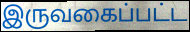
இருவகைப்பட்ட